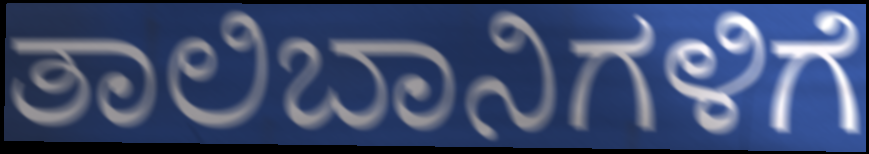
ತಾಲಿಬಾನಿಗಳಿಗೆ